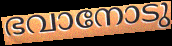
ഭവാനോടു